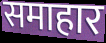
समाहार